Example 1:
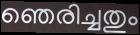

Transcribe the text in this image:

ഞെരിച്ചതും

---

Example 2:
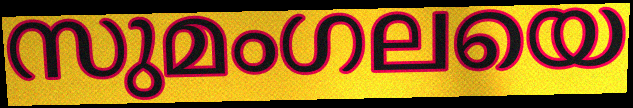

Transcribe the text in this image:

സുമംഗലയെ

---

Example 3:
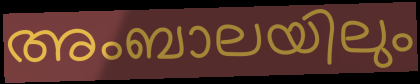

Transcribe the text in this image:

അംബാലയിലും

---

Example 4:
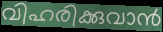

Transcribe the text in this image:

വിഹരിക്കുവാൻ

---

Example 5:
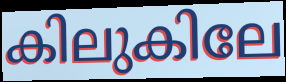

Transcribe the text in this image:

കിലുകിലേ